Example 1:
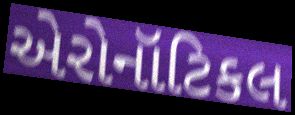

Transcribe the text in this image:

એરોનૉટિકલ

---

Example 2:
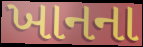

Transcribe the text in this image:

ખાનના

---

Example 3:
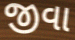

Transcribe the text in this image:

જીવા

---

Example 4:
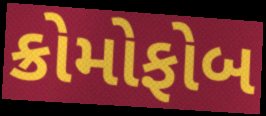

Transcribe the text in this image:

ક્રોમોફોબ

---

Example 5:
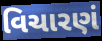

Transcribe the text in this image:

વિચારણં